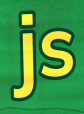
js